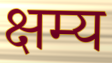
क्षम्य